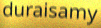
duraisamy